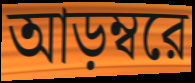
আড়ম্বরে